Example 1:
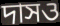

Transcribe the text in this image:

দাসও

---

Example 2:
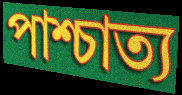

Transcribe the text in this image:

পাশ্চাত্য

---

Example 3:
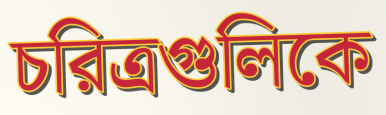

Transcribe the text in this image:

চরিত্রগুলিকে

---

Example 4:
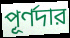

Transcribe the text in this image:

পূর্ণদার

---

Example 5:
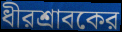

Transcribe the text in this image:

ধীরশ্রাবকের